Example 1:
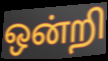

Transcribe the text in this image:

ஒன்றி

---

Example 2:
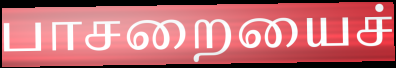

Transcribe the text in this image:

பாசறையைச்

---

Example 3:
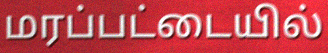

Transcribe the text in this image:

மரப்பட்டையில்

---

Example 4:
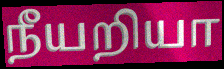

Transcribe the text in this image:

நீயறியா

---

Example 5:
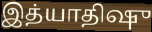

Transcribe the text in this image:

இத்யாதிஷு